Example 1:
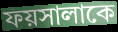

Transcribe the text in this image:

ফয়সালাকে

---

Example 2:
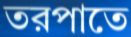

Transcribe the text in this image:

তরপাতে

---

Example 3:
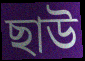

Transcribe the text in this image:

ছাউ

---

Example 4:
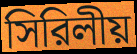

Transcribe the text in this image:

সিরিলীয়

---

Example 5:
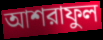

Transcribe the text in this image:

আশরাফুল